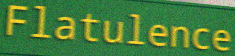
Flatulence